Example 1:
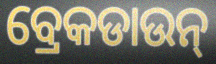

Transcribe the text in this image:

ବ୍ରେକଡାଉନ୍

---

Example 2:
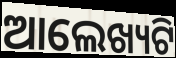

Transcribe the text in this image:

ଆଲେଖ୍ୟଟି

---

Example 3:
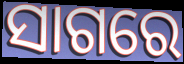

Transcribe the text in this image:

ସାଗରେ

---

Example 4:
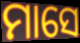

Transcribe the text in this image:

ମାସେ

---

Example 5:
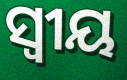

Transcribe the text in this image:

ସ୍ୱୀୟ